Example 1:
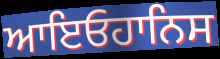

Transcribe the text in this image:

ਆਇਓਹਾਨਿਸ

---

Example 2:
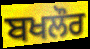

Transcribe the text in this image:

ਬਖਲੌਰ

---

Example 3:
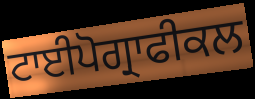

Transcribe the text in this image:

ਟਾਈਪੋਗ੍ਰਾਫੀਕਲ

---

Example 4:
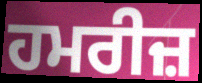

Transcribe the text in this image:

ਹਮਰੀਜ਼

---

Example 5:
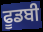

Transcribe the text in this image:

ਫੂਡਬੀ